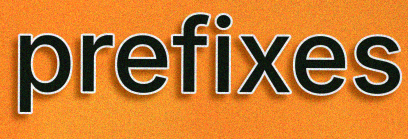
prefixes